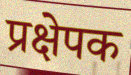
प्रक्षेपक